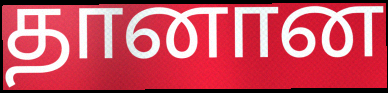
தானான